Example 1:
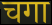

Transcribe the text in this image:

चगा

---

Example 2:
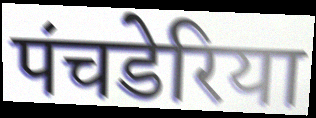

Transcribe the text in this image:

पंचडेरिया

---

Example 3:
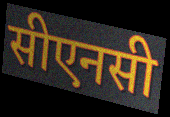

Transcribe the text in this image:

सीएनसी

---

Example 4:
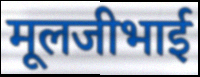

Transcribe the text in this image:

मूलजीभाई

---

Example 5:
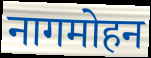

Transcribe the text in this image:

नागमोहन